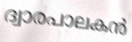
ദ്വാരപാലകൻ